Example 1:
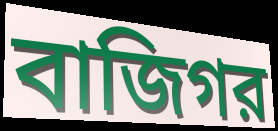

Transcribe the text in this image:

বাজিগর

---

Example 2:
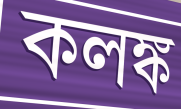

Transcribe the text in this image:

কলঙ্ক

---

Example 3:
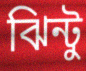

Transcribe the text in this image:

ঝিন্টু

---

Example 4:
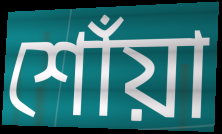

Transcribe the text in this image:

শোঁয়া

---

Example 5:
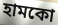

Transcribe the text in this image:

হামকো